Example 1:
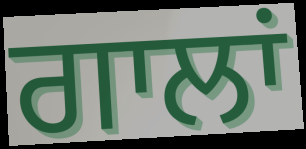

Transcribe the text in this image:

ਗਾਲਾਂ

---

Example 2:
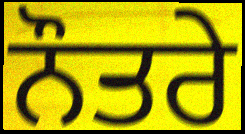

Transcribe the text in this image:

ਨੌਤਰੇ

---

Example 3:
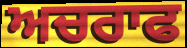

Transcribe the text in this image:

ਅਚਰਾਫ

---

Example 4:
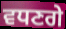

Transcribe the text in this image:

ਵਧਣਗੇ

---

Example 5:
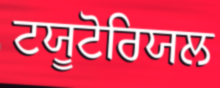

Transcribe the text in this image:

ਟਯੂਟੋਰਿਯਲ